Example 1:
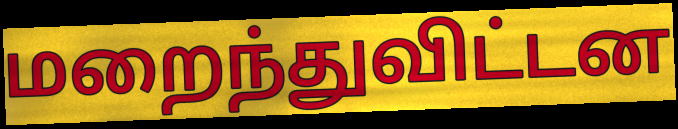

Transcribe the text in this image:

மறைந்துவிட்டன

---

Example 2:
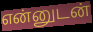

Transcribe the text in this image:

என்னுடன்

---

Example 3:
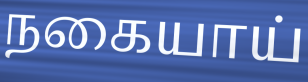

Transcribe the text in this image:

நகையாய்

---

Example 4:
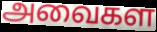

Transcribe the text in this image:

அவைகள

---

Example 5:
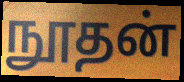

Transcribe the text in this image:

நூதன்